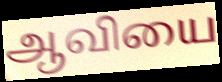
ஆவியை